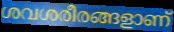
ശവശരീരങ്ങളാണ്